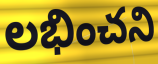
లభించని